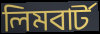
লিমবার্ট